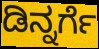
ಡಿನ್ನರ್ಗೆ